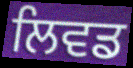
ਲਿਵਡ